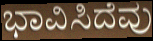
ಭಾವಿಸಿದೆವು